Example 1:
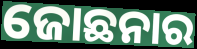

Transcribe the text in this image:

ଜୋଛନାର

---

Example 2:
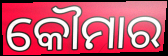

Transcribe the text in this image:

କୌମାର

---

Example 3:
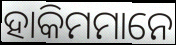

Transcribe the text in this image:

ହାକିମମାନେ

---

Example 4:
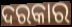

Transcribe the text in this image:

ଦରକାର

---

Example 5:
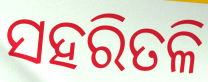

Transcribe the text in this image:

ସହରିତଳି